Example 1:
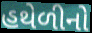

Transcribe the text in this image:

હથેળીનો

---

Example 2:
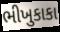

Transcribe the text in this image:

ભીખુકાકા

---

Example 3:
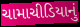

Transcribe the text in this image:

ચામાચીડિયાનું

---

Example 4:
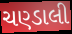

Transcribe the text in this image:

ચણ્ડાલી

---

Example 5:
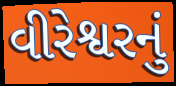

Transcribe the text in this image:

વીરેશ્વરનું